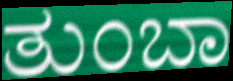
ತುಂಬಾ